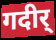
गदीर्